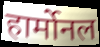
हार्मोनल